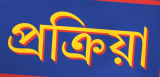
প্ৰক্ৰিয়া